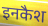
इनकैश